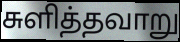
சுளித்தவாறு